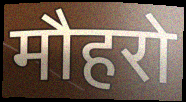
मौहरो